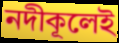
নদীকূলেই